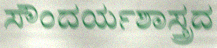
ಸೌಂದರ್ಯಶಾಸ್ತ್ರದ